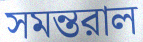
সমন্তরাল